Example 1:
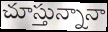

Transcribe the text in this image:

చూస్తున్నానా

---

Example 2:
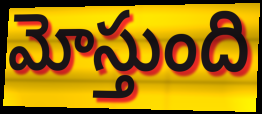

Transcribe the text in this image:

మోస్తుంది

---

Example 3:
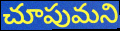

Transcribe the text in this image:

చూపుమని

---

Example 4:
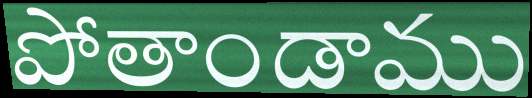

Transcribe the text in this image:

పోతాండాము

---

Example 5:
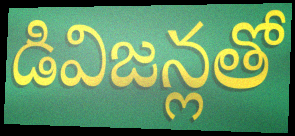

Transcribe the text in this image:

డివిజన్లతో